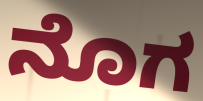
ನೊಗ